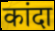
कांदा